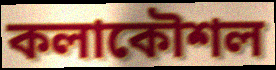
কলাকৌশল